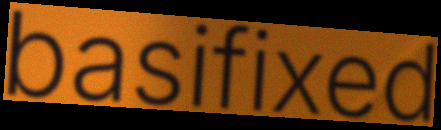
basifixed